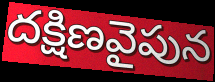
దక్షిణవైపున